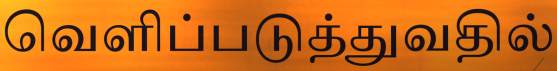
வெளிப்படுத்துவதில்